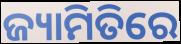
ଜ୍ୟାମିତିରେ